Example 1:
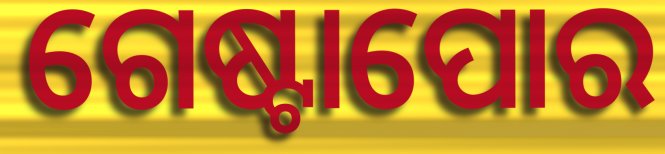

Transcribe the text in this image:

ଗେଷ୍ଟାପୋର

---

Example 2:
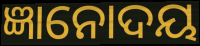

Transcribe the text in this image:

ଜ୍ଞାନୋଦୟ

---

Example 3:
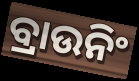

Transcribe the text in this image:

ବ୍ରାଉନିଂ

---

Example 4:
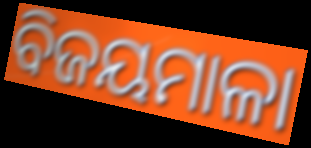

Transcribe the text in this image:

ବିଜୟମାଳା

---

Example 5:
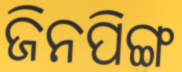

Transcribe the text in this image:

ଜିନପିଙ୍ଗ